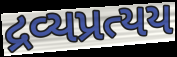
દ્રવ્યપ્રત્યય